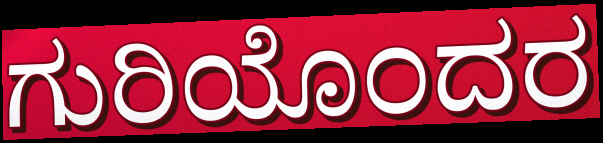
ಗುರಿಯೊಂದರ